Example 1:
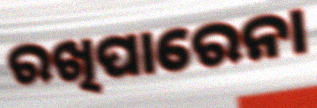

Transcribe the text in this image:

ରଖିପାରେନା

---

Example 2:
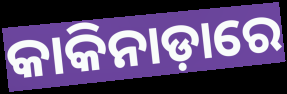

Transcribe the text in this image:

କାକିନାଡ଼ାରେ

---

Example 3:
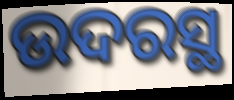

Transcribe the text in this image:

ଉଦରସ୍ଥ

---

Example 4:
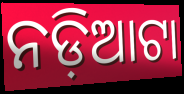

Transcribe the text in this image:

ନଡ଼ିଆଟା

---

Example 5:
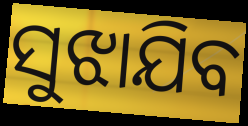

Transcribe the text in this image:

ସୁଝାଯିବ